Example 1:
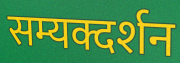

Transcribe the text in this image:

सम्यक्दर्शन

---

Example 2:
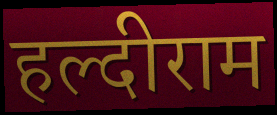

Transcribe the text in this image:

हल्दीराम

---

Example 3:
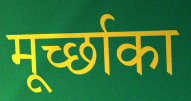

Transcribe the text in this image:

मूर्च्छाका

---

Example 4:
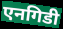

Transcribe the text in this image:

एनगिडी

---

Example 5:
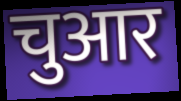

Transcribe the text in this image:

चुआर